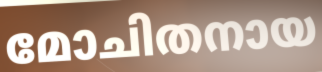
മോചിതനായ